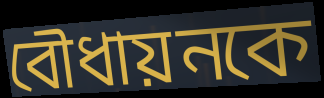
বৌধায়নকে